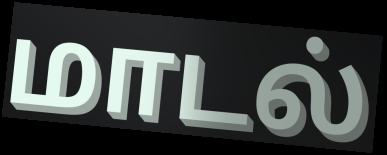
மாடல்